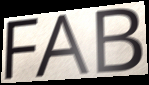
FAB